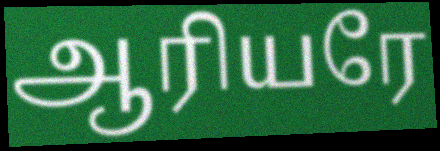
ஆரியரே